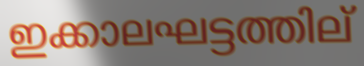
ഇക്കാലഘട്ടത്തില്